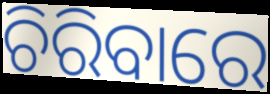
ଚିରିବାରେ